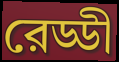
রেড্ডী